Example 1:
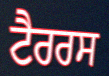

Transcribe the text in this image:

ਟੈਰਰਸ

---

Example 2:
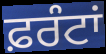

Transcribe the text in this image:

ਫ਼ਰੰਟਾਂ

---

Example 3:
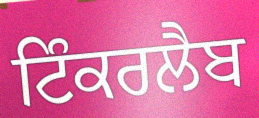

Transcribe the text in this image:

ਟਿੰਕਰਲੈਬ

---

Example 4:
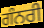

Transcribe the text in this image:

ਗੰਨਰੀ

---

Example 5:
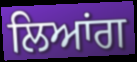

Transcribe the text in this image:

ਲਿਆਂਗ